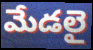
మేడలై